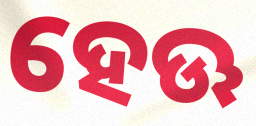
ହେଊ